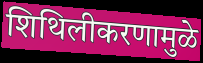
शिथिलीकरणामुळे